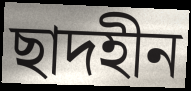
ছাদহীন